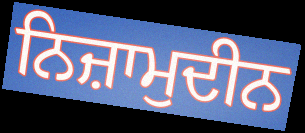
ਨਿਜ਼ਾਮੁਦੀਨ